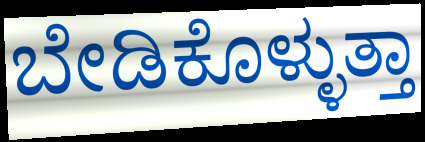
ಬೇಡಿಕೊಳ್ಳುತ್ತಾ